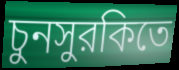
চুনসুরকিতে